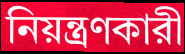
নিয়ন্ত্রণকারী